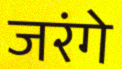
जरंगे